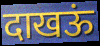
दाखऊं